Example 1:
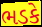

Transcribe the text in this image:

ભડકે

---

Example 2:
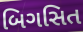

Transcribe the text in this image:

બિગસિત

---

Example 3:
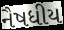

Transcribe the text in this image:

નૈષધીય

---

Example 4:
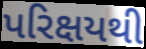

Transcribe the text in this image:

પરિક્ષયથી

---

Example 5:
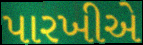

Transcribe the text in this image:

પારખીએ